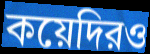
কয়েদিরও